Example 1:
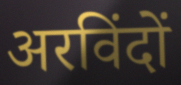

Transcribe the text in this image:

अरविंदों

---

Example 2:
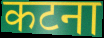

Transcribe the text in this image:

कटना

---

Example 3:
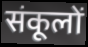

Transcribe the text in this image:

संकूलों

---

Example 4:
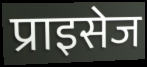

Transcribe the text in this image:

प्राइसेज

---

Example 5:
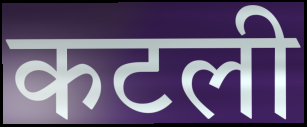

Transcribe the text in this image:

कटली